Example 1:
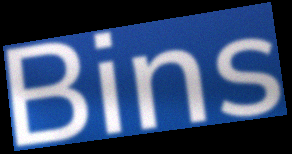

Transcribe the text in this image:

Bins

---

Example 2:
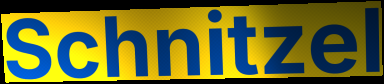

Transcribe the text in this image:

Schnitzel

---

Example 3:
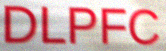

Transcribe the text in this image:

DLPFC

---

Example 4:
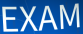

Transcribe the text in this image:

EXAM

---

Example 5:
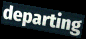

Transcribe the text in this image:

departing